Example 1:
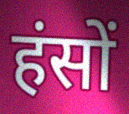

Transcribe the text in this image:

हंसों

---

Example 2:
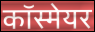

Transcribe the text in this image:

कॉस्मेयर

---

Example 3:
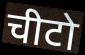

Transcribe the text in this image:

चीटो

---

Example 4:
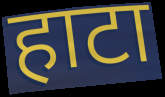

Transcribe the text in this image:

हाटा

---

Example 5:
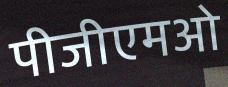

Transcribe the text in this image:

पीजीएमओ